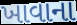
ખાવાના